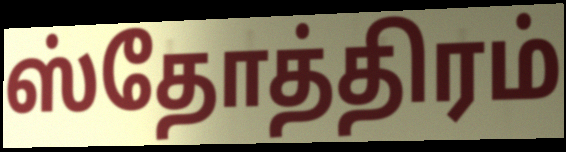
ஸ்தோத்திரம்